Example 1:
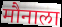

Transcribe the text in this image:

मौनाला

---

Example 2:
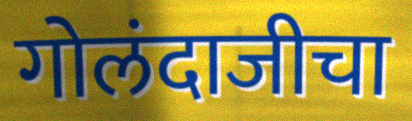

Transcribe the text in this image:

गोलंदाजीचा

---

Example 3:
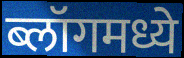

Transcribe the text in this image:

ब्लॉगमध्ये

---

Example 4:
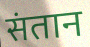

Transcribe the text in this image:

संतान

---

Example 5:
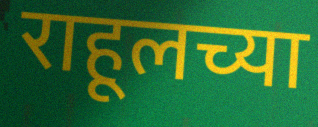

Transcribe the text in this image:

राहूलच्या